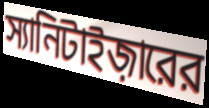
স্যানিটাইজ়ারের